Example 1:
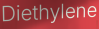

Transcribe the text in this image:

Diethylene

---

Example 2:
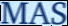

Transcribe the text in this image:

MAS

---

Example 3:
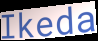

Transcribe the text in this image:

Ikeda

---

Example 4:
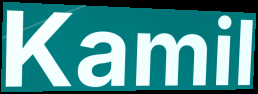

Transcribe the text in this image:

Kamil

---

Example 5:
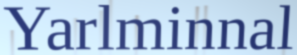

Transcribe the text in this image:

Yarlminnal